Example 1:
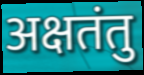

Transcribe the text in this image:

अक्षतंतु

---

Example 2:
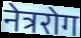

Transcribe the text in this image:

नेत्ररोग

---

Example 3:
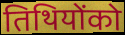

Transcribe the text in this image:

तिथियोंको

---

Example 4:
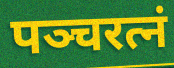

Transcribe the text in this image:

पञ्चरत्नं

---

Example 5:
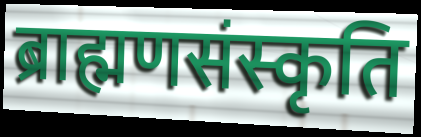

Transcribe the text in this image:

ब्राह्मणसंस्कृति